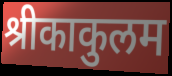
श्रीकाकुलम